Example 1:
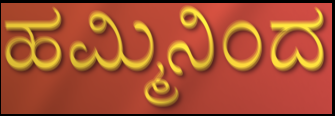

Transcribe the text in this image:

ಹಮ್ಮಿನಿಂದ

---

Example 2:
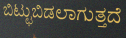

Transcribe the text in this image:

ಬಿಟ್ಟುಬಿಡಲಾಗುತ್ತದೆ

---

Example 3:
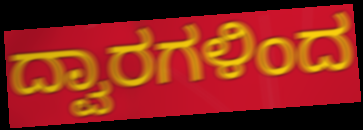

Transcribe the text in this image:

ದ್ವಾರಗಳಿಂದ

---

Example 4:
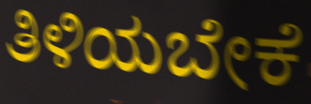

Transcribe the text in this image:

ತಿಳಿಯಬೇಕೆ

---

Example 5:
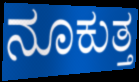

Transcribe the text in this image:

ನೂಕುತ್ತ